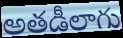
అతడీలాగు